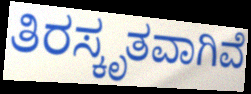
ತಿರಸ್ಕೃತವಾಗಿವೆ